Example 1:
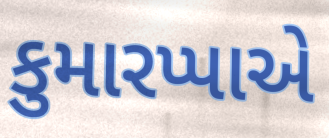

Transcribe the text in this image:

કુમારપ્પાએ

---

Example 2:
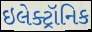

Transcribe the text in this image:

ઇલેક્ટ્રૉનિક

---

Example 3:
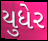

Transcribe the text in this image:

યુધેર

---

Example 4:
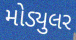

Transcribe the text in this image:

મોડ્યુલર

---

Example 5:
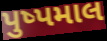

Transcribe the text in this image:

પુષ્પમાલ